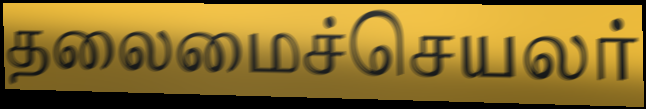
தலைமைச்செயலர்